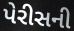
પેરીસની